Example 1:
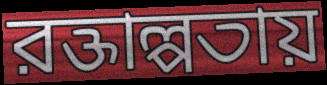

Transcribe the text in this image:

রক্তাল্পতায়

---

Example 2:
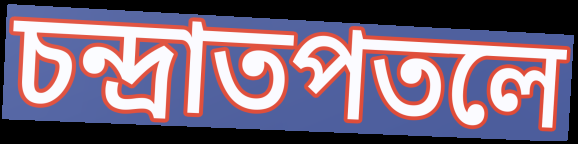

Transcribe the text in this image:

চন্দ্রাতপতলে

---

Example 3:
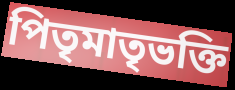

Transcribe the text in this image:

পিতৃমাতৃভক্তি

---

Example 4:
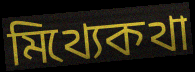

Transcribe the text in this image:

মিথ্যেকথা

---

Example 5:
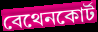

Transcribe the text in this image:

বেথেনকোর্ট